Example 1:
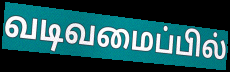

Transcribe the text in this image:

வடிவமைப்பில்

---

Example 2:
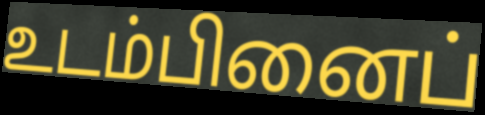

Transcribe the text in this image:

உடம்பினைப்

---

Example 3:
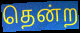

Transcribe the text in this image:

தென்ற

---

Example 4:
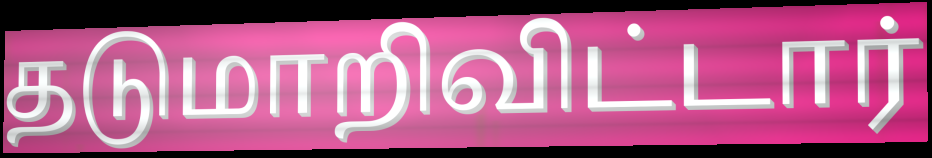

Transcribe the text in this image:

தடுமாறிவிட்டார்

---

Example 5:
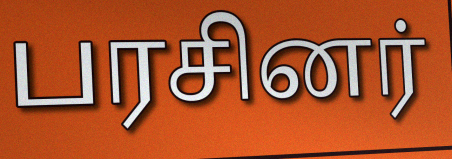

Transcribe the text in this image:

பரசினர்